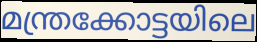
മന്ത്രക്കോട്ടയിലെ